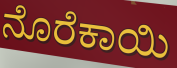
ನೊರೆಕಾಯಿ